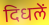
दिधलें